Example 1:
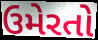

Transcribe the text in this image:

ઉમેરતો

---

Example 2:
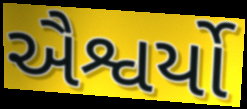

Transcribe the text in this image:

ઐશ્વર્યો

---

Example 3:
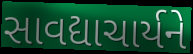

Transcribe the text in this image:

સાવદ્યાચાર્યને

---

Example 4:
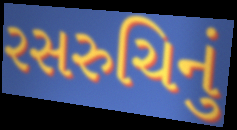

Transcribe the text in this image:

રસરુચિનું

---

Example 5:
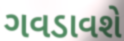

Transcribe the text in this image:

ગવડાવશે